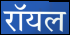
रॉयल